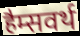
हैम्सवर्थ